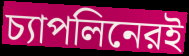
চ্যাপলিনেরই